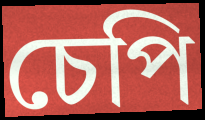
চেপি